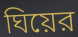
ঘিয়ের